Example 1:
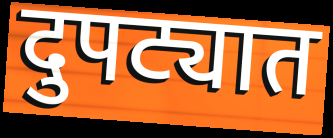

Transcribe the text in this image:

दुपट्यात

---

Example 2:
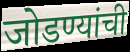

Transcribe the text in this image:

जोडण्यांची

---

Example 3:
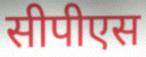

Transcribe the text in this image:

सीपीएस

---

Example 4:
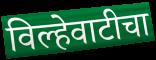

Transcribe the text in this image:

विल्हेवाटीचा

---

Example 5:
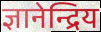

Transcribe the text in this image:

ज्ञानेन्द्रिय